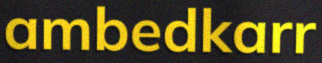
ambedkarr